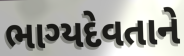
ભાગ્યદેવતાને